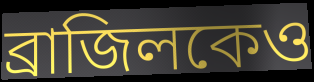
ব্রাজিলকেও